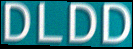
DLDD